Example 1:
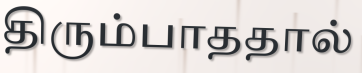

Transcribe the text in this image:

திரும்பாததால்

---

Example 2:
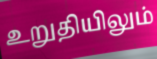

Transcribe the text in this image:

உறுதியிலும்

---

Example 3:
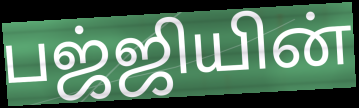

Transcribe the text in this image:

பஜ்ஜியின்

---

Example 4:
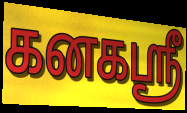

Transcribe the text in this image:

கனகஸ்ரீ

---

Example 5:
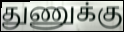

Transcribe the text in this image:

துணுக்கு